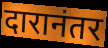
दारानंतर